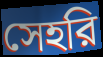
সেহরি